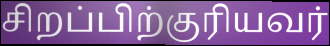
சிறப்பிற்குரியவர்